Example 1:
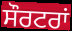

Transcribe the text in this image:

ਸੌਰਟਰਾਂ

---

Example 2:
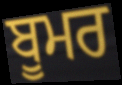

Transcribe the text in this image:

ਬੂਮਰ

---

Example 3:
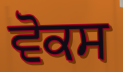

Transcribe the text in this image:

ਵੋਕਸ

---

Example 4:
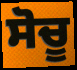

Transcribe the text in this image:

ਸੋਚੂ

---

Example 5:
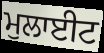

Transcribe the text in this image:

ਮੁਲਾਈਟ